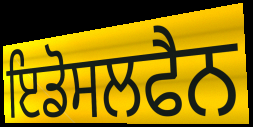
ਇਡੋਸਲਫੈਨ